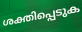
ശക്തിപ്പെടുക